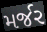
મર્જર